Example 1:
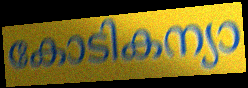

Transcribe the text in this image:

കോടികന്യാ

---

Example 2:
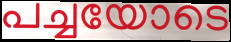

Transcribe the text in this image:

പച്ചയോടെ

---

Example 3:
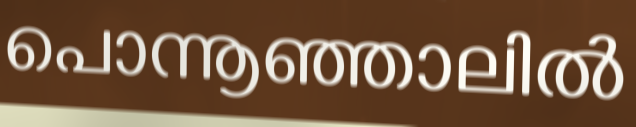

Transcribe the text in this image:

പൊന്നൂഞ്ഞാലിൽ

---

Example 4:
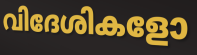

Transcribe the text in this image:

വിദേശികളോ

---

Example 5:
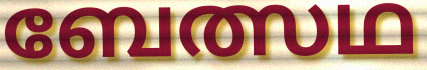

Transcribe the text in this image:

ബേത്സഥ